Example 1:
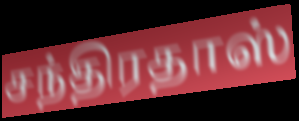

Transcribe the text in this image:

சந்திரதாஸ்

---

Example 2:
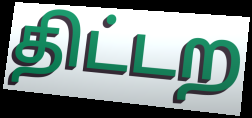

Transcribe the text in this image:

திட்டற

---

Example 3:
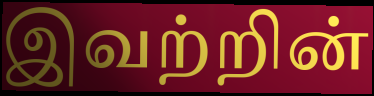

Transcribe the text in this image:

இவற்றின்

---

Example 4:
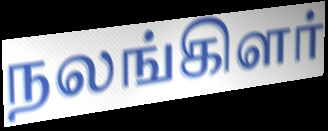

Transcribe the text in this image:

நலங்கிளர்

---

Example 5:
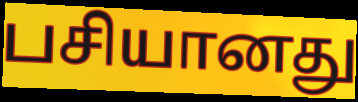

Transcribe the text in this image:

பசியானது